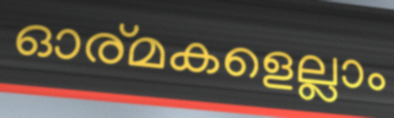
ഓര്മകളെല്ലാം